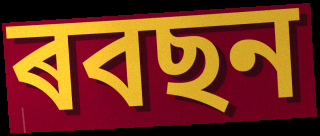
ৰবছন